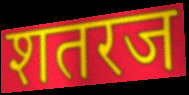
शतरज